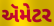
ઍમેટર